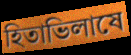
হিতাভিলাষে